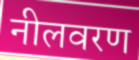
नीलवरण